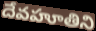
దేవహూతిని